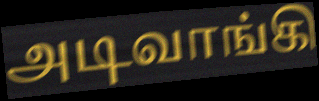
அடிவாங்கி